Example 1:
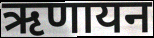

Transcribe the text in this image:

ऋणायन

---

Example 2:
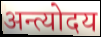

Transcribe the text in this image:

अन्त्योदय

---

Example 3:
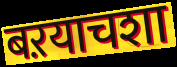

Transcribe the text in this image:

बऱयाचशा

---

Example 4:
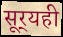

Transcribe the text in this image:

सूर्यही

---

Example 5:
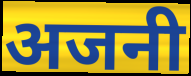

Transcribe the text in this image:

अजनी